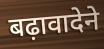
बढ़ावादेने